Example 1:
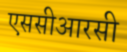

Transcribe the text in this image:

एससीआरसी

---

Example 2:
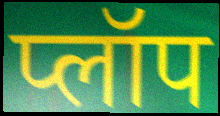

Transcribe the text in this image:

प्लॉप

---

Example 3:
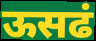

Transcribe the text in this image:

ऊसढं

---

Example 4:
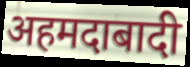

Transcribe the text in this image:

अहमदाबादी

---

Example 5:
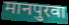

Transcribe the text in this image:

मानपुरवा